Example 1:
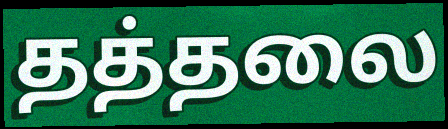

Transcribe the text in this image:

தத்தலை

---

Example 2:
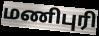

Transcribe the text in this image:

மணிபுரி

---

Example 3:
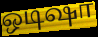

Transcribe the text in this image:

ஒடிஷா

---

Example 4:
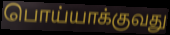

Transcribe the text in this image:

பொய்யாக்குவது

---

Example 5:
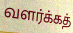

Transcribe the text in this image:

வளர்க்கத்